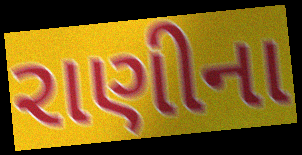
રાણીના